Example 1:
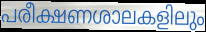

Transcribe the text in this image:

പരീക്ഷണശാലകളിലും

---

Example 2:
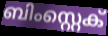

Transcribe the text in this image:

ബിംസ്റ്റെക്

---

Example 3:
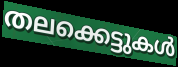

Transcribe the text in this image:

തലക്കെട്ടുകൾ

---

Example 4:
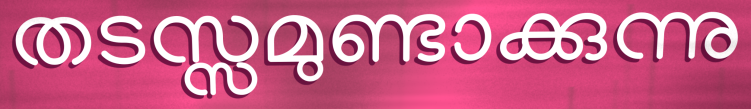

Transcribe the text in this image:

തടസ്സമുണ്ടാക്കുന്നു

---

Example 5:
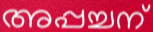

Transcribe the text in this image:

അപ്പച്ചന്